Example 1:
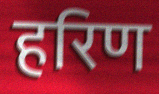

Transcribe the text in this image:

हरिण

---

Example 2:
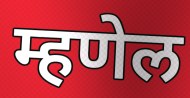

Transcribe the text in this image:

म्हणेल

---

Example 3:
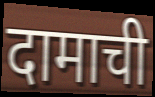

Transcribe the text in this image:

दामाची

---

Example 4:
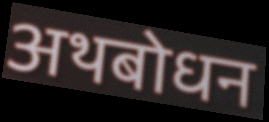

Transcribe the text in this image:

अथबोधन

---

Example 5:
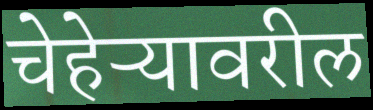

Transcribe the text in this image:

चेहेऱ्यावरील